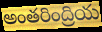
అంతరింద్రియ